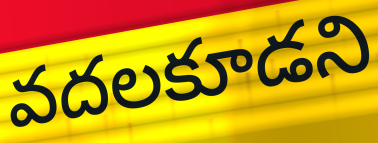
వదలకూడని